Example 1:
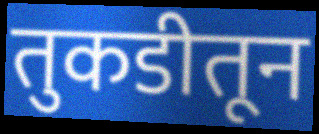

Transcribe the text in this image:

तुकडीतून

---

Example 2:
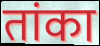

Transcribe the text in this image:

तांका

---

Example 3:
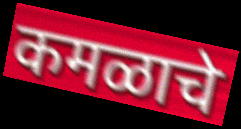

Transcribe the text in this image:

कमळाचे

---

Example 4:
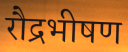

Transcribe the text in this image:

रौद्रभीषण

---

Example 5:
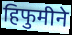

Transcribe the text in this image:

हिफुमीने